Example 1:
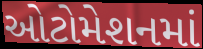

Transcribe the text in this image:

ઓટોમેશનમાં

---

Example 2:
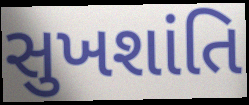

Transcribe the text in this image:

સુખશાંતિ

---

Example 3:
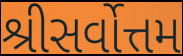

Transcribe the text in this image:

શ્રીસર્વોત્તમ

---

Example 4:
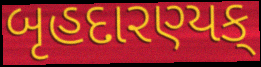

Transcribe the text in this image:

બૃહદારણ્યક્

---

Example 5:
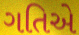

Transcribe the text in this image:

ગતિએ